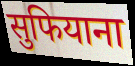
सुफियाना